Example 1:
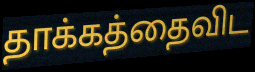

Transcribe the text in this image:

தாக்கத்தைவிட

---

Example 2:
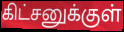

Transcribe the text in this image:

கிட்சனுக்குள்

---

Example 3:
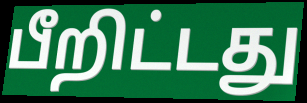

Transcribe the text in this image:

பீறிட்டது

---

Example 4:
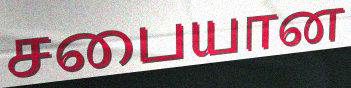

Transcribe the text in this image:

சபையான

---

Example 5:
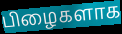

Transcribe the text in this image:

பிழைகளாக